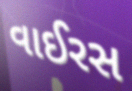
વાઈરસ